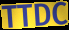
TTDC